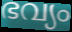
ഭവ്യം